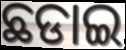
ଛଡାଇ